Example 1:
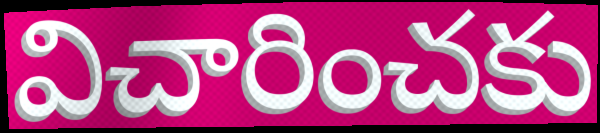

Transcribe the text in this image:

విచారించకు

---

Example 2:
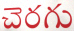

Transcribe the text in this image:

చెరగు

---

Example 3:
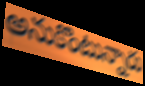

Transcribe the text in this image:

అనుకొంటున్నారు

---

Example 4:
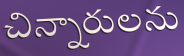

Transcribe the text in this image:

చిన్నారులను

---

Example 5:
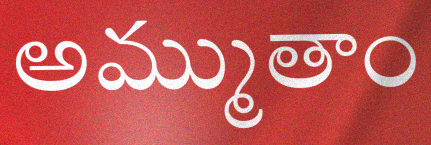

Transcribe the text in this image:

అమ్ముతాం